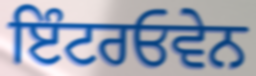
ਇੰਟਰਓਵੇਨ